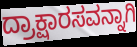
ದ್ರಾಕ್ಷಾರಸವನ್ನಾಗಿ